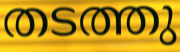
തടത്തു